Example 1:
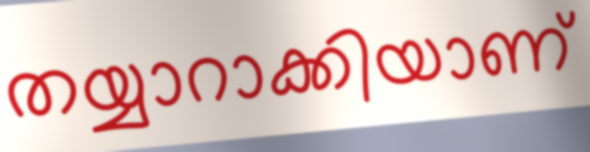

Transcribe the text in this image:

തയ്യാറാക്കിയാണ്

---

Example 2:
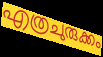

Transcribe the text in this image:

എത്രചുരുക്കം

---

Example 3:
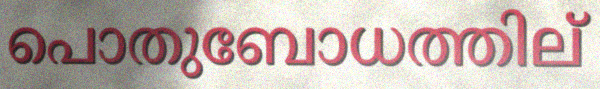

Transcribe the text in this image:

പൊതുബോധത്തില്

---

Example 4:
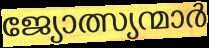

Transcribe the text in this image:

ജ്യോത്സ്യന്മാർ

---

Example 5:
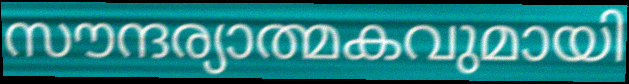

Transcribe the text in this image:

സൗന്ദര്യാത്മകവുമായി